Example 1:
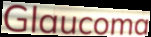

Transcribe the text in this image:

Glaucoma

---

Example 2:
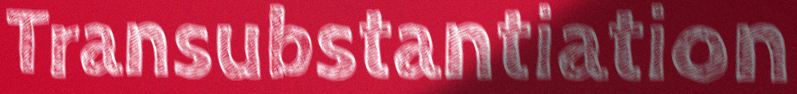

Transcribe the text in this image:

Transubstantiation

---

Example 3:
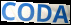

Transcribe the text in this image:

CODA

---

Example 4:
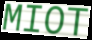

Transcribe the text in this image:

MIOT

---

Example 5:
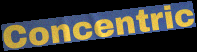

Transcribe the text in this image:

Concentric